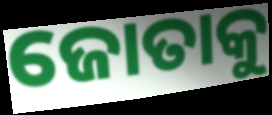
ଜୋତାକୁ